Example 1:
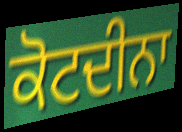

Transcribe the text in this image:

ਕੋਟਦੀਨਾ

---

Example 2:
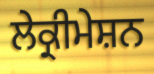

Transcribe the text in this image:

ਲੇਕ੍ਰੀਮੇਸ਼ਨ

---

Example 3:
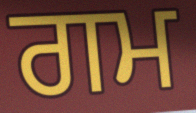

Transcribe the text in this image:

ਗਮ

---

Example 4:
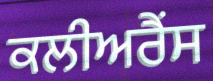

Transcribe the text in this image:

ਕਲੀਅਰੈਂਸ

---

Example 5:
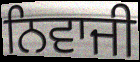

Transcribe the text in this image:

ਨਿਵਾਜੀ